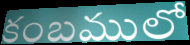
కంబములో